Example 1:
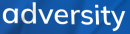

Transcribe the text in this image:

adversity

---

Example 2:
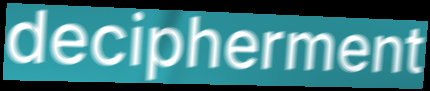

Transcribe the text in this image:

decipherment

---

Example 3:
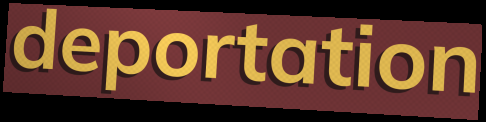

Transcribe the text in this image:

deportation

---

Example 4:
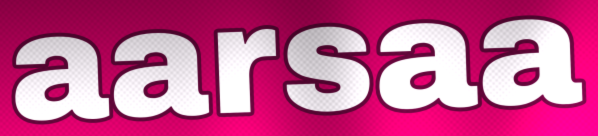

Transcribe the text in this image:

aarsaa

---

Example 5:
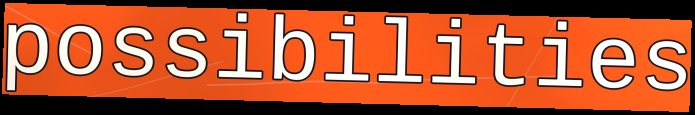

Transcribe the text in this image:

possibilities